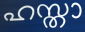
ഹസ്താ